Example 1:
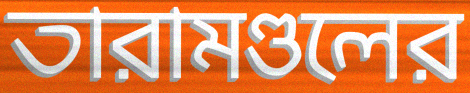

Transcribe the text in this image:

তারামণ্ডলের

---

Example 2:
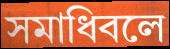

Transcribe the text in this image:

সমাধিবলে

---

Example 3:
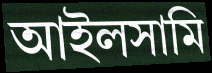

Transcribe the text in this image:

আইলসামি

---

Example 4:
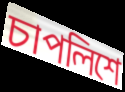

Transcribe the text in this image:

চাপলিশে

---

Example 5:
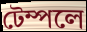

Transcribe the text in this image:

টেম্পলে